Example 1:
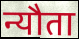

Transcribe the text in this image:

न्यौता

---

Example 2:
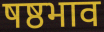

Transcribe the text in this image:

षष्ठभाव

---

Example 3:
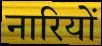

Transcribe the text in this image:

नारियों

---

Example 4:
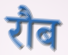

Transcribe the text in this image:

रौब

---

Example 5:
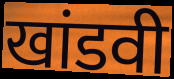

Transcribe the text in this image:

खांडवी